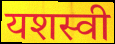
यशस्‍वी